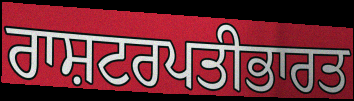
ਰਾਸ਼ਟਰਪਤੀਭਾਰਤ